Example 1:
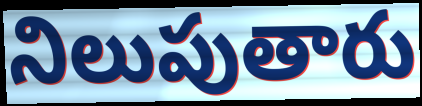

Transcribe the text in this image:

నిలుపుతారు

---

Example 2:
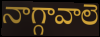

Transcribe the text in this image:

నాగ్గావాలె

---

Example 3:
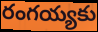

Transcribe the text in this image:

రంగయ్యకు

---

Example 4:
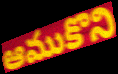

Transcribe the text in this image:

ఆముకొని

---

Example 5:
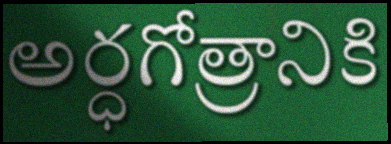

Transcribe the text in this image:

అర్ధగోత్రానికి